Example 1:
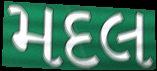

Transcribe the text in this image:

મદલ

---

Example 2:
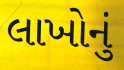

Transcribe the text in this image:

લાખોનું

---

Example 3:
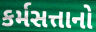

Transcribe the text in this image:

કર્મસત્તાનો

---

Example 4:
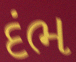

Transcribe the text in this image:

દંભ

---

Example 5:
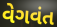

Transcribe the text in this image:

વેગવંત